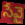
సేవై